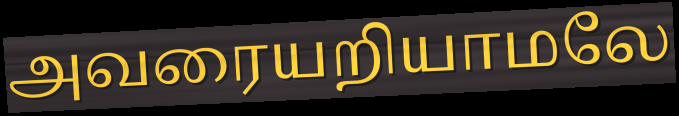
அவரையறியாமலே